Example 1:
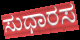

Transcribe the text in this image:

ಸುಧಾರಸ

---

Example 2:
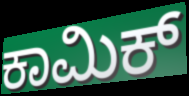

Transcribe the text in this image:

ಕಾಮಿಕ್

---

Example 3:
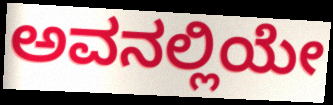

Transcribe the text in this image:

ಅವನಲ್ಲಿಯೇ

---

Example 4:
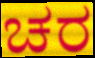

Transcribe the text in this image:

ಚರ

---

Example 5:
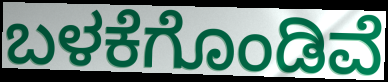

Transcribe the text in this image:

ಬಳಕೆಗೊಂಡಿವೆ